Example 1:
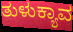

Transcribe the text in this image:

ತುಳುಕ್ಯಾವ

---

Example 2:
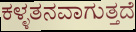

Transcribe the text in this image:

ಕಳ್ಳತನವಾಗುತ್ತದೆ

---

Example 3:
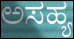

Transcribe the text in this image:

ಅಸಹ್ಯ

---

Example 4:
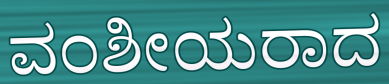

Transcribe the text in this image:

ವಂಶೀಯರಾದ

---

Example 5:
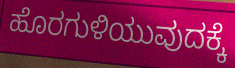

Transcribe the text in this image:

ಹೊರಗುಳಿಯುವುದಕ್ಕೆ